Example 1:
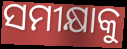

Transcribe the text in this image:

ସମୀକ୍ଷାକୁ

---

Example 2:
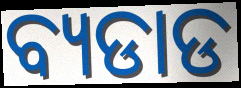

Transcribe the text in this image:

ବ୍ୟଡାଡ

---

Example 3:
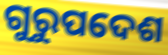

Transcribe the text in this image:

ଗୁରୁପଦେଶ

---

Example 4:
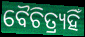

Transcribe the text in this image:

ବୈଚିତ୍ର୍ୟହିଁ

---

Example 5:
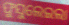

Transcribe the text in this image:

ଫୁସୁଲେଇଲା